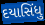
દયાસિંધુ